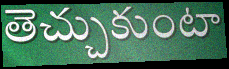
తెచ్చుకుంటా